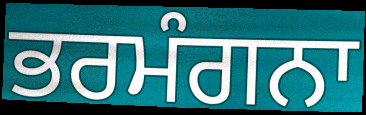
ਭਰਮੰਗਨਾ